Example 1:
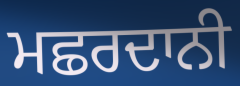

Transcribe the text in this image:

ਮਛਰਦਾਨੀ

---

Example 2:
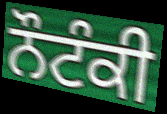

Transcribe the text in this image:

ਨੌਟੰਕੀ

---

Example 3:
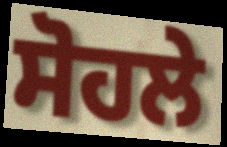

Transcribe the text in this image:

ਸੋਹਲੇ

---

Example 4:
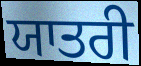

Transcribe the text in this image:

ਯਾਤਰੀ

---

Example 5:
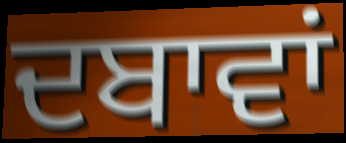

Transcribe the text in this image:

ਦਬਾਵਾਂ